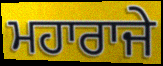
ਮਹਾਰਾਜੇ